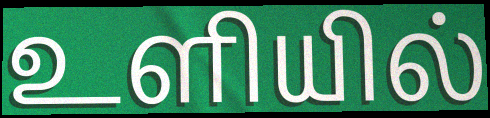
உளியில்